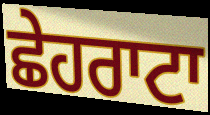
ਛੇਹਰਾਟਾ